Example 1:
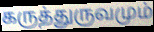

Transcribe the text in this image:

கருத்துருவமும்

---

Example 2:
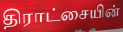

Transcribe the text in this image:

திராட்சையின்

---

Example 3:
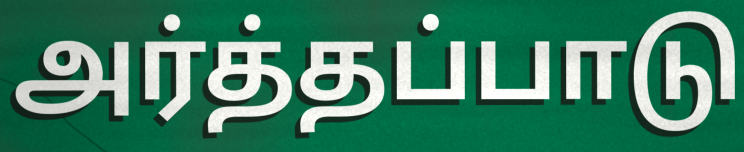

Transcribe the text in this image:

அர்த்தப்பாடு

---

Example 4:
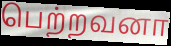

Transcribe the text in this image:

பெற்றவனா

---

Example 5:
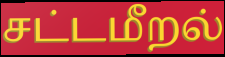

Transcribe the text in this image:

சட்டமீறல்